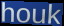
houk